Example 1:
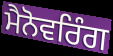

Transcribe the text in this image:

ਮੈਨੋਵਰਿੰਗ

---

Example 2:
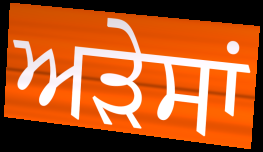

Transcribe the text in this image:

ਅੜੇਸਾਂ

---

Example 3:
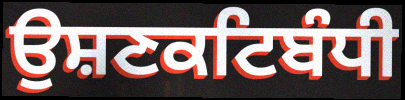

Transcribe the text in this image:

ਉਸ਼ਣਕਟਿਬੰਧੀ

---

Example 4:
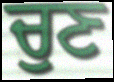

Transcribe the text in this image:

ਚੁਣ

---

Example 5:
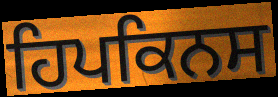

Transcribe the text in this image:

ਹਿਪਕਿਨਸ